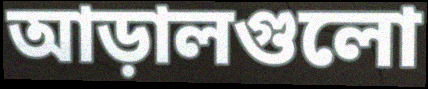
আড়ালগুলো